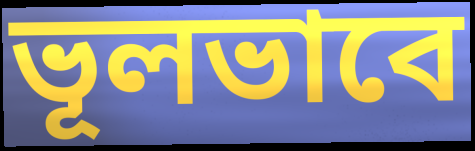
ভূলভাবে